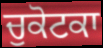
ਚੁਕੋਟਕਾ